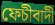
ফেচীবাদী